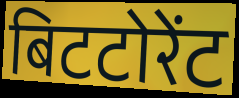
बिटटोरेंट